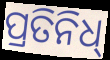
ପ୍ରତିନିଧ୍